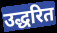
उद्धरित